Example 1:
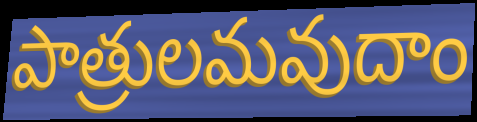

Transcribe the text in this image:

పాత్రులమవుదాం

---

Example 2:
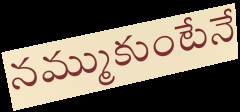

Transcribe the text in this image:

నమ్ముకుంటేనే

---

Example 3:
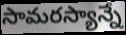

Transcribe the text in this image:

సామరస్యాన్నే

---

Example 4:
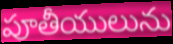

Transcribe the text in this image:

పూతీయులును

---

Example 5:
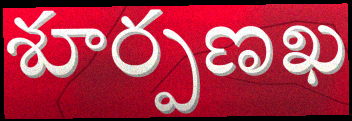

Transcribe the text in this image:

శూర్పణఖ